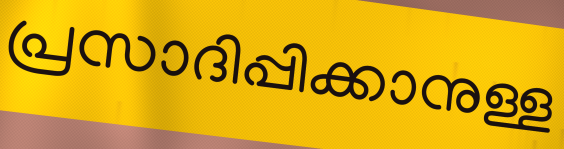
പ്രസാദിപ്പിക്കാനുള്ള